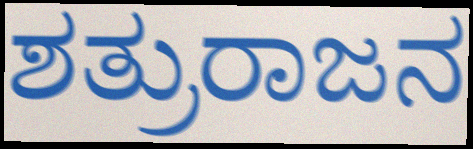
ಶತ್ರುರಾಜನ